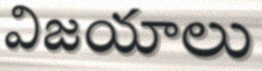
విజయాలు